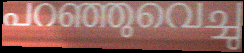
പറഞ്ഞുവെച്ചു